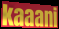
kaaani